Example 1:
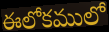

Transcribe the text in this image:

ఈలోకములో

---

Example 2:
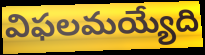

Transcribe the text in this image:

విఫలమయ్యేది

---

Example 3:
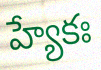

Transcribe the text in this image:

హ్యేకః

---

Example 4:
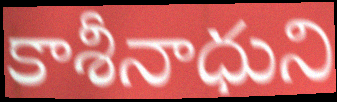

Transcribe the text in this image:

కాశీనాధుని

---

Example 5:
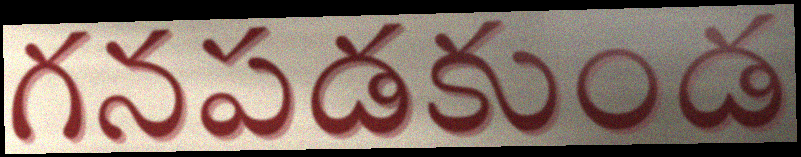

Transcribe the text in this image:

గనపడకుండ